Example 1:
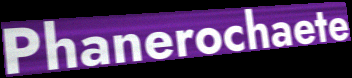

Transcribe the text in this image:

Phanerochaete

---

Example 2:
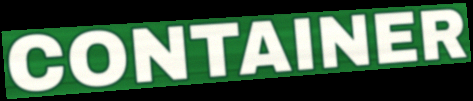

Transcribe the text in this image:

CONTAINER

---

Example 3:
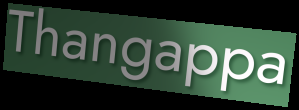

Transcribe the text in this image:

Thangappa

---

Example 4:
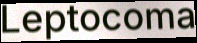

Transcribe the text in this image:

Leptocoma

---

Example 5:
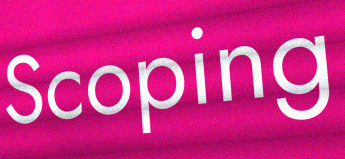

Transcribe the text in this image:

Scoping